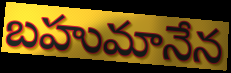
బహుమానేన